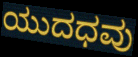
ಯುದಧವು